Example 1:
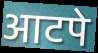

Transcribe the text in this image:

आटपे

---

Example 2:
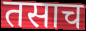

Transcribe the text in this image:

तसाच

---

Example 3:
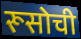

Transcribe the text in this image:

रूसोची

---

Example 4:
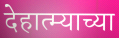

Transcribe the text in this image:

देहात्म्याच्या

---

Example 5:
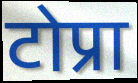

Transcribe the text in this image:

टोप्रा